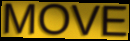
MOVE